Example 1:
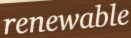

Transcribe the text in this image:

renewable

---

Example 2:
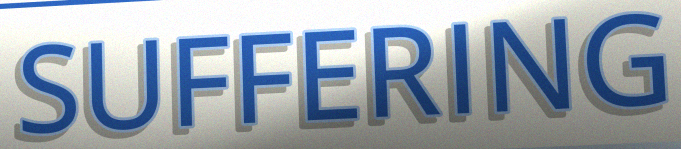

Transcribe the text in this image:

SUFFERING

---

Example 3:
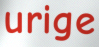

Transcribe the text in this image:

urige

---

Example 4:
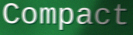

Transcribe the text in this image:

Compact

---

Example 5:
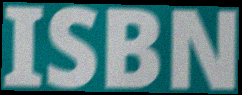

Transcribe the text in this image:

ISBN